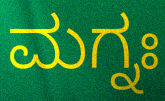
ಮಗ್ನಃ